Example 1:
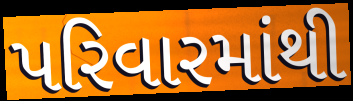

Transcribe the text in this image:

પરિવારમાંથી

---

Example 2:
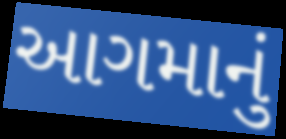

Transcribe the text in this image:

આગમાનું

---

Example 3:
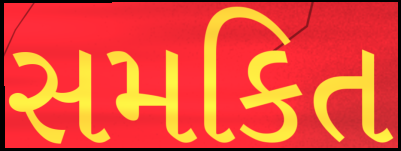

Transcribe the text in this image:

સમકિત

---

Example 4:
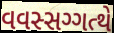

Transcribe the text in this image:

વવસ્સગ્ગત્થે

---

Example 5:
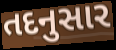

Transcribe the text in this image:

તદનુસાર